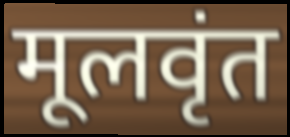
मूलवृंत